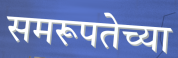
समरूपतेच्या